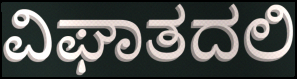
ವಿಘಾತದಲಿ